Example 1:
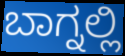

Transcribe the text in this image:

ಬಾಗ್ನಲ್ಲಿ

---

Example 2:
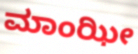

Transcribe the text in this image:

ಮಾಂಝೀ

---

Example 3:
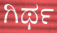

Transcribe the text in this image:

ಗಿರ್ಥ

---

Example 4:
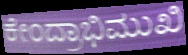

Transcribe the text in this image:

ಕೇಂದ್ರಾಭಿಮುಖಿ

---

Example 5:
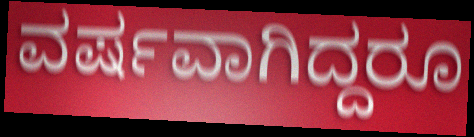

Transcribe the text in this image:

ವರ್ಷವಾಗಿದ್ದರೂ